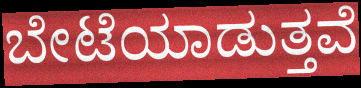
ಬೇಟೆಯಾಡುತ್ತವೆ